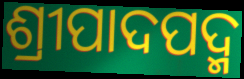
ଶ୍ରୀପାଦପଦ୍ମ